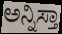
ಅನ್ನಿಸ್ತಾ